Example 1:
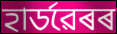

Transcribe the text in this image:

হাৰ্ডৱেৰৰ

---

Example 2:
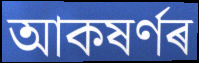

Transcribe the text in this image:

আকষৰ্ণৰ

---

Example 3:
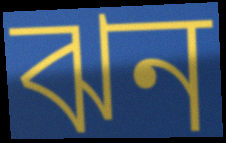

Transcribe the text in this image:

ঝন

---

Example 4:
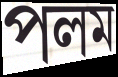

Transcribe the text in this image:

পলম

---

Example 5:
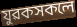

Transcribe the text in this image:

যুৱকসকলে